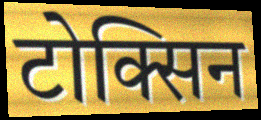
टोक्सिन